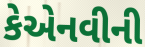
કેએનવીની